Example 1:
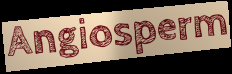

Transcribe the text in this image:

Angiosperm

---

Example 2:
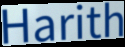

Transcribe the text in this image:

Harith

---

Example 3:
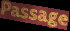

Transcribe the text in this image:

Passage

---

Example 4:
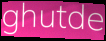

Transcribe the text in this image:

ghutde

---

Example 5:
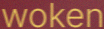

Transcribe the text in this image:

woken